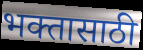
भक्तासाठी